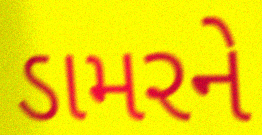
ડામરને